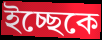
ইচ্ছেকে